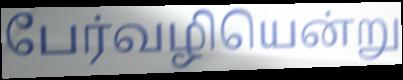
பேர்வழியென்று